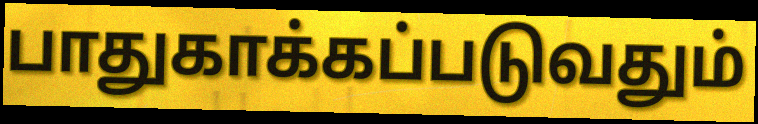
பாதுகாக்கப்படுவதும்